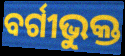
ବର୍ଗୀଭୁକ୍ତ